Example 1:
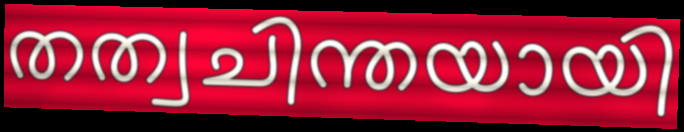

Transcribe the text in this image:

തത്വചിന്തയായി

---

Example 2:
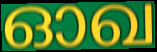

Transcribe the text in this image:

ഓഖ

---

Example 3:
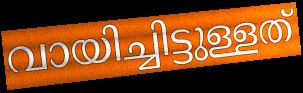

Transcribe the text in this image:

വായിച്ചിട്ടുള്ളത്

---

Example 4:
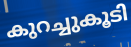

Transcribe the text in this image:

കുറച്ചുകൂടി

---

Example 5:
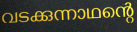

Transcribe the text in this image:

വടക്കുന്നാഥന്റെ